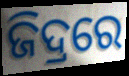
ଜିଦ୍ରରେ